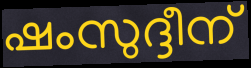
ഷംസുദ്ദീന്